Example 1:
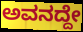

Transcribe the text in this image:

ಅವನದ್ದೇ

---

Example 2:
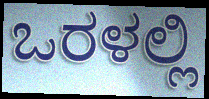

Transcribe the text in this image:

ಒರಳಲ್ಲಿ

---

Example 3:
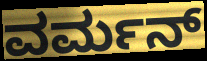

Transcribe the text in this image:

ವರ್ಮನ್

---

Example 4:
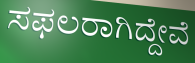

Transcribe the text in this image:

ಸಫಲರಾಗಿದ್ದೇವೆ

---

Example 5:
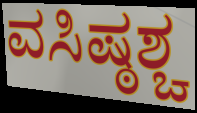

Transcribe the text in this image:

ವಸಿಷ್ಠಶ್ಚ